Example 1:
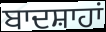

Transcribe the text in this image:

ਬਾਦਸ਼ਾਹਾਂ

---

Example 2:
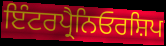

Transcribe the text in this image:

ਇੰਟਰਪ੍ਰੈਨਿਓਰਸ਼ਿਪ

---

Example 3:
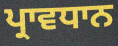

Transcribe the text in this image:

ਪ੍ਰਾਵਧਾਨ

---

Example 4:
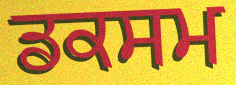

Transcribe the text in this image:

ਡਕਸਮ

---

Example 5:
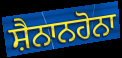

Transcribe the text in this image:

ਸ਼ੈਨਾਨਹੋਨਾ